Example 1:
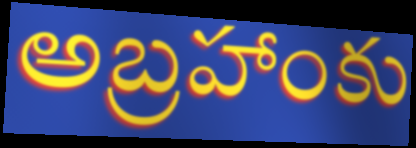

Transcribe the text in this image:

అబ్రహాంకు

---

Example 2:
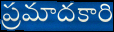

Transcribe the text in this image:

ప్రమాదకారి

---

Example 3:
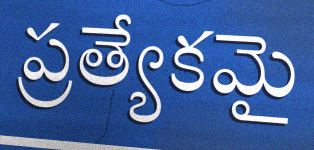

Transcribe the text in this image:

ప్రత్యేకమై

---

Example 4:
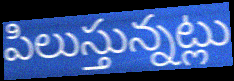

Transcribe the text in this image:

పిలుస్తున్నట్లు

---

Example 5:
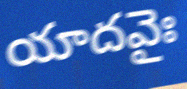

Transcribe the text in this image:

యాదవైః